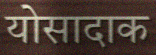
योसादाक